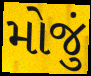
મોજું